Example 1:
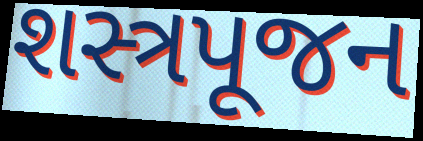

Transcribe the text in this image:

શસ્ત્રપૂજન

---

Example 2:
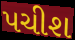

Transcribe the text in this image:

પચીશ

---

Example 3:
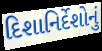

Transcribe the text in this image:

દિશાનિર્દેશોનું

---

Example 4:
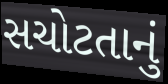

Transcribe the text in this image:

સચોટતાનું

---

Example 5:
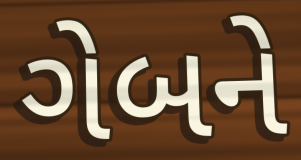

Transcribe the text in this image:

ગેબને